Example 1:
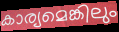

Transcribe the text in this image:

കാര്യമെങ്കിലും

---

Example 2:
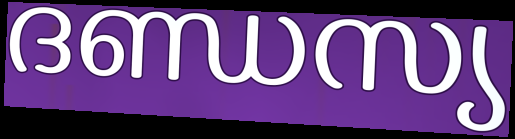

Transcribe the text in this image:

ദണ്ഡസ്യ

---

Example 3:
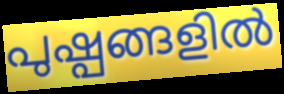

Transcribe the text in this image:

പുഷ്പങ്ങളിൽ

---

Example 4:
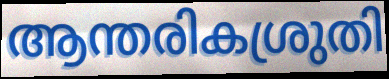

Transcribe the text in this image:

ആന്തരികശ്രുതി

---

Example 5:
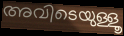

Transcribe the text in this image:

അവിടെയുള്ളൂ